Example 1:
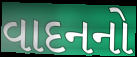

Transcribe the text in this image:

વાદનનો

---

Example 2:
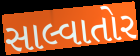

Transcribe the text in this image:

સાલ્વાતોર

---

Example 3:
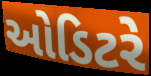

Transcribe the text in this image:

ઓડિટરે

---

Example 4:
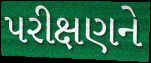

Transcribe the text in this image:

પરીક્ષણને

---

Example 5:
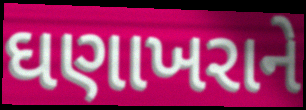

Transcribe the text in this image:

ઘણાખરાને